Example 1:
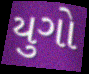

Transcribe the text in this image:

યુગો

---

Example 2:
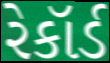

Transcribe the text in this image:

રેકૉર્ડ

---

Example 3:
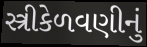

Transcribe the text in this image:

સ્ત્રીકેળવણીનું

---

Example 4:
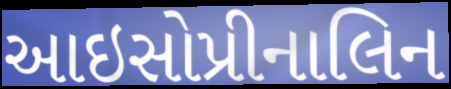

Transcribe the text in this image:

આઇસોપ્રીનાલિન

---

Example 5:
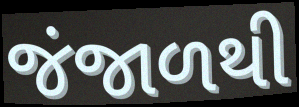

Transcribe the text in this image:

જંજાળથી